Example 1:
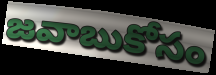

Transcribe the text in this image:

జవాబుకోసం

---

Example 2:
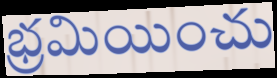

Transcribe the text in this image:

భ్రమియించు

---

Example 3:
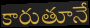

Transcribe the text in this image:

కారుతూనే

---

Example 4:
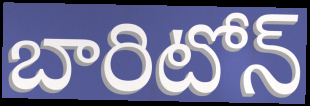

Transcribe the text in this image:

బారిటోన్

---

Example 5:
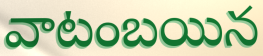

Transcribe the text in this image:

వాటంబయిన